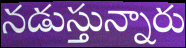
నడుస్తున్నారు